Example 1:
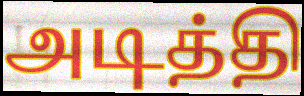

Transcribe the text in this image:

அடித்தி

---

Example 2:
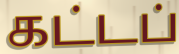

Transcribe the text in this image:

கட்டப்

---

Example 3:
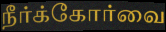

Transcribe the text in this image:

நீர்க்கோர்வை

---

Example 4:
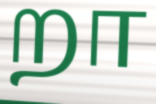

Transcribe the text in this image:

றா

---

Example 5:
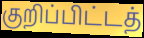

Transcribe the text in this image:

குறிப்பிட்டத்